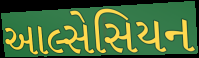
આલ્સેસિયન